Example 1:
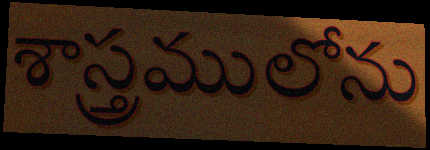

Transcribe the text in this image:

శాస్త్రములోను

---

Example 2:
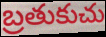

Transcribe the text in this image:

బ్రతుకుచు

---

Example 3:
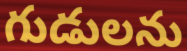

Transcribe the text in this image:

గుడులను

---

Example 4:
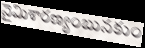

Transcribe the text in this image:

నైమిశారణ్యంబునకుం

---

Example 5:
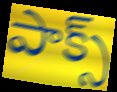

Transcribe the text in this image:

పాక్స్